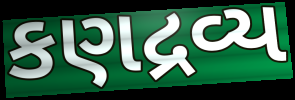
કણદ્રવ્ય